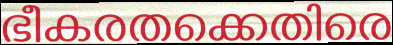
ഭീകരതക്കെതിരെ